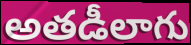
అతడీలాగు